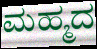
ಮಹ್ಮದ